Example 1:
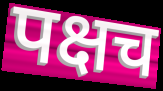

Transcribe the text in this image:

पक्षच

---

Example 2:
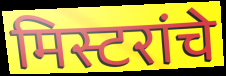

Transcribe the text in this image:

मिस्टरांचे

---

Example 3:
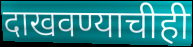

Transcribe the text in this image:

दाखवण्याचीही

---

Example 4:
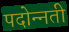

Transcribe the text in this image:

पदोन्‍नती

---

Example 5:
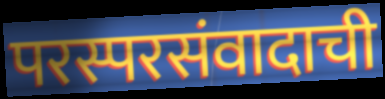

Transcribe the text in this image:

परस्परसंवादाची